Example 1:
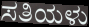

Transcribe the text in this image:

ಸತಿಯಳು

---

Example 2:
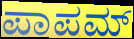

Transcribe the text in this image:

ಪಾಪಮ್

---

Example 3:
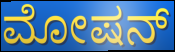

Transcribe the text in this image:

ಮೋಷನ್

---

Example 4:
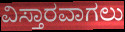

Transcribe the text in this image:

ವಿಸ್ತಾರವಾಗಲು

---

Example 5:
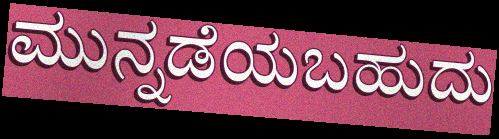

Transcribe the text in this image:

ಮುನ್ನಡೆಯಬಹುದು